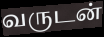
வருடன்